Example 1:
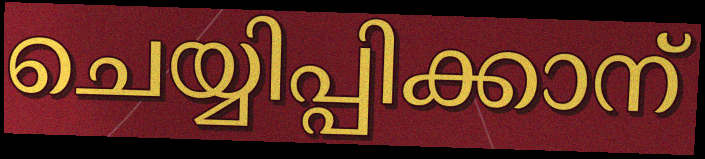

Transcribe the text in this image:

ചെയ്യിപ്പിക്കാന്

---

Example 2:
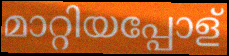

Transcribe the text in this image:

മാറ്റിയപ്പോള്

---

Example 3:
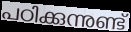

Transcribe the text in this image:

പഠിക്കുന്നുണ്ട്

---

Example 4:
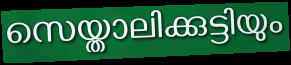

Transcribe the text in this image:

സെയ്താലിക്കുട്ടിയും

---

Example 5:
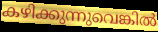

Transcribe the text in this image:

കഴിക്കുന്നുവെങ്കിൽ